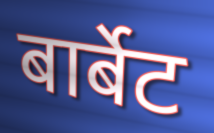
बार्बेट